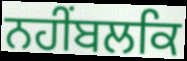
ਨਹੀਂਬਲਕਿ